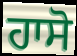
ਹਾਸੋ